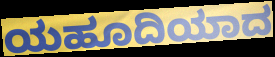
ಯಹೂದಿಯಾದ